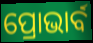
ପ୍ରୋଭାର୍ବ